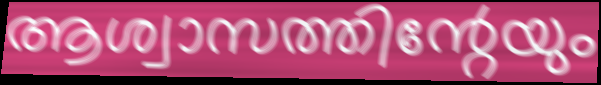
ആശ്വാസത്തിന്റേയും